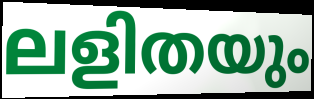
ലളിതയും